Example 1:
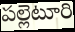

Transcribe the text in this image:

పల్లెటూరి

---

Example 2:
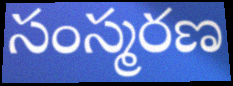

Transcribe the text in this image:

సంస్మరణ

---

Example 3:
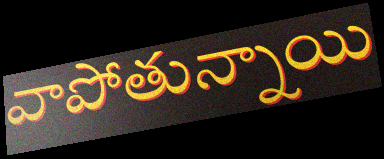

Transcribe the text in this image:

వాపోతున్నాయి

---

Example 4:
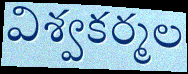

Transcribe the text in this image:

విశ్వకర్మల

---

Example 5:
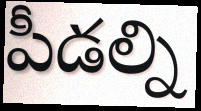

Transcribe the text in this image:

పీడల్ని